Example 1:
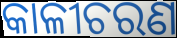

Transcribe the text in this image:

କାଳୀଚରଣ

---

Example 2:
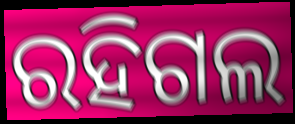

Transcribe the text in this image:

ରହିଗଲ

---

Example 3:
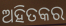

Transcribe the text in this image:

ଅହିତକର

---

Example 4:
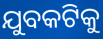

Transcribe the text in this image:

ଯୁବକଟିକୁ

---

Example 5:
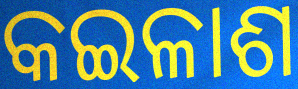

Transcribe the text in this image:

କଇଳାଶ